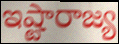
ఇష్టారాజ్య